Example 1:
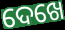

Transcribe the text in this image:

ଦେଖେ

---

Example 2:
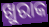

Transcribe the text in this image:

ଖୁରାକ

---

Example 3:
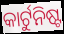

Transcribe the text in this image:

କାର୍ଟୁନିଷ୍ଟ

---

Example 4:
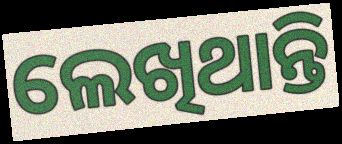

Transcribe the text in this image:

ଲେଖିଥାନ୍ତି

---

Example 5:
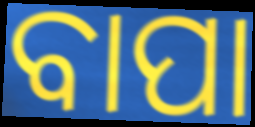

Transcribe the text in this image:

ବାପା